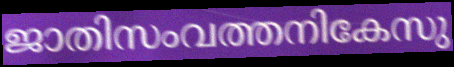
ജാതിസംവത്തനികേസു